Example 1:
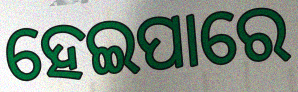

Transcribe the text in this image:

ହେଇପାରେ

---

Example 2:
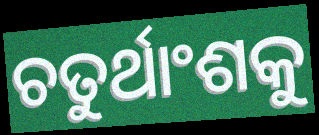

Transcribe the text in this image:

ଚତୁର୍ଥାଂଶକୁ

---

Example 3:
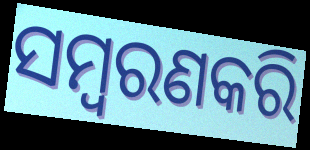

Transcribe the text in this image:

ସମ୍ବରଣକରି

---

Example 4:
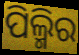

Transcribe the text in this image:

ପିଲ୍ମିର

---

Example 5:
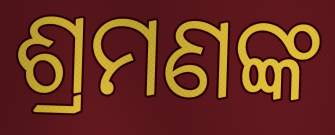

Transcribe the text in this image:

ଶ୍ରମଣଙ୍କ